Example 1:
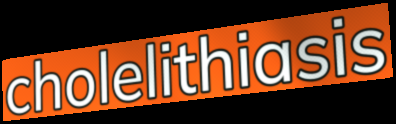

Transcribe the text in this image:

cholelithiasis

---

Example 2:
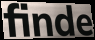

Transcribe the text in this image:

finde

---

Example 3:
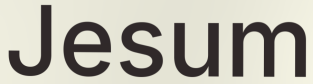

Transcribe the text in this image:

Jesum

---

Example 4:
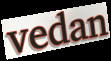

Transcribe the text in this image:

vedan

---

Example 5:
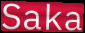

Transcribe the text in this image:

Saka